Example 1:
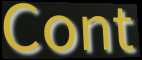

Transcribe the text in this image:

Cont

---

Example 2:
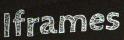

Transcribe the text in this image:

Iframes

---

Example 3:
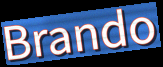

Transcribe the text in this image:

Brando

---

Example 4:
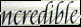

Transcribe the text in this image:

ncredible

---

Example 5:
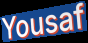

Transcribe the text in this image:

Yousaf